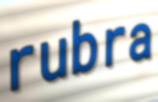
rubra